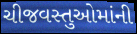
ચીજવસ્તુઓમાંની